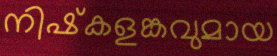
നിഷ്‌കളങ്കവുമായ